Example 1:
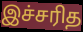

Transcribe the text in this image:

இச்சரித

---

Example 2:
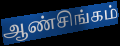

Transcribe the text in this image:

ஆண்சிங்கம்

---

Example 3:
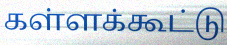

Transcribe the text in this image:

கள்ளக்கூட்டு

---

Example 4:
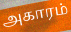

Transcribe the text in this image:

அகாரம்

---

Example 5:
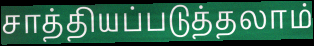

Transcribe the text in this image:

சாத்தியப்படுத்தலாம்